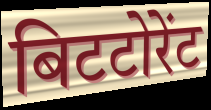
बिटटोरेंट